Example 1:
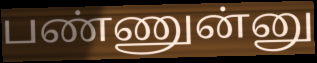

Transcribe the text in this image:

பண்ணுன்னு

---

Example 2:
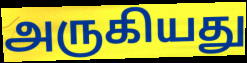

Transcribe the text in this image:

அருகியது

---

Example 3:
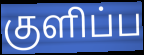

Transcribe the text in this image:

குளிப்ப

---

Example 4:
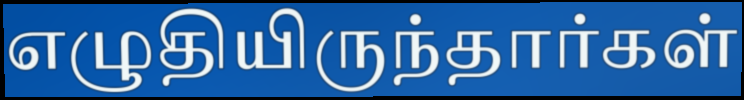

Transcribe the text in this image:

எழுதியிருந்தார்கள்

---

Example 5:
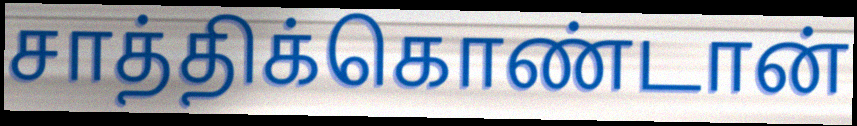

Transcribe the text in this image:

சாத்திக்கொண்டான்